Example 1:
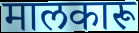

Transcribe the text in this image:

मालकारू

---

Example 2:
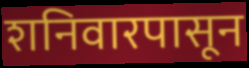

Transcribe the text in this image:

शनिवारपासून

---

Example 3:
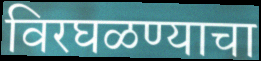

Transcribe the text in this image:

विरघळण्याचा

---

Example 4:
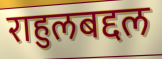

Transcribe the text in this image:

राहुलबद्दल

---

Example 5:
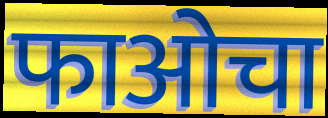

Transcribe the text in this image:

फाओचा